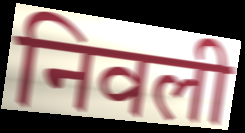
निवली